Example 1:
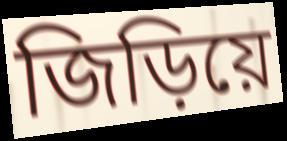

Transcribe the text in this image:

জিড়িয়ে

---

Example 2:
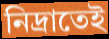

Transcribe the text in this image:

নিদ্রাতেই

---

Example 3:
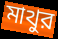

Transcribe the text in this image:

মাথুর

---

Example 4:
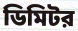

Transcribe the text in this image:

ডিমিটর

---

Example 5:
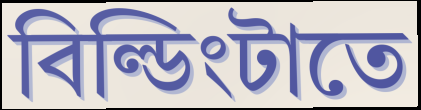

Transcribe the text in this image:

বিল্ডিংটাতে